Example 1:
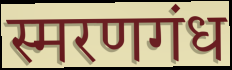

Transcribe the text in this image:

स्मरणगंध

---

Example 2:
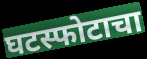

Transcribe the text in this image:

घटस्फोटाचा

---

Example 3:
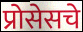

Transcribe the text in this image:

प्रोसेसचे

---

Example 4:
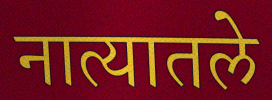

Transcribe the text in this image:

नात्यातले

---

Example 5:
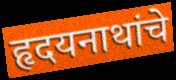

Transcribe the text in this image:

हृदयनाथांचे